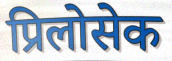
प्रिलोसेक